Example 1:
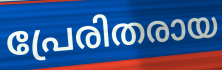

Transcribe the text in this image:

പ്രേരിതരായ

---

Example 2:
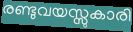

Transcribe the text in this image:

രണ്ടുവയസ്സുകാരി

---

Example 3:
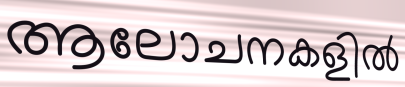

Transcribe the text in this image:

ആലോചനകളിൽ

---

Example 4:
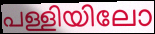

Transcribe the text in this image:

പള്ളിയിലോ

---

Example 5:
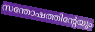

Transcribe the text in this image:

സന്തോഷത്തിന്റേയും